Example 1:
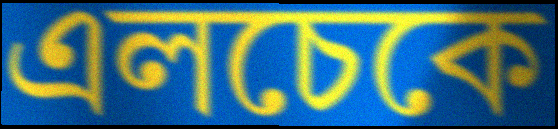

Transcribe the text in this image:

এলচেকে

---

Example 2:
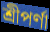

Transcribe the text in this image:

শ্রীপর্ণা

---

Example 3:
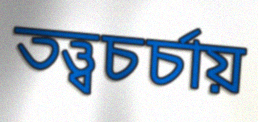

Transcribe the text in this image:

তত্ত্বচর্চায়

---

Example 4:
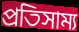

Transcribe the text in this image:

প্রতিসাম্য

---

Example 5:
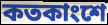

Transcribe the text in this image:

কতকাংশে